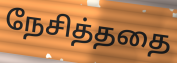
நேசித்ததை